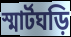
স্মার্টঘড়ি